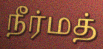
நீர்மத்